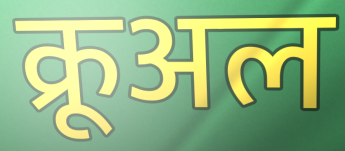
क्रूअल